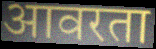
आवरता